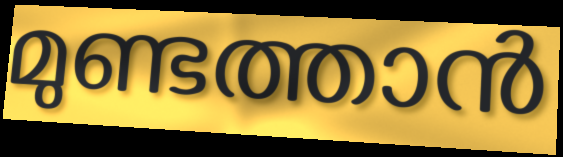
മുണ്ടത്താൻ